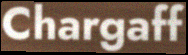
Chargaff